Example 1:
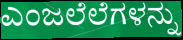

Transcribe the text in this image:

ಎಂಜಲೆಲೆಗಳನ್ನು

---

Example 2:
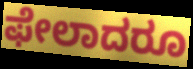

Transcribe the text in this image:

ಫೇಲಾದರೂ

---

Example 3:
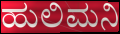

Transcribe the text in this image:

ಹುಲಿಮನಿ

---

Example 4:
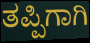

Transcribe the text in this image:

ತಪ್ಪಿಗಾಗಿ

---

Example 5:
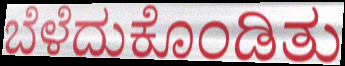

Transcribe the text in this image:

ಬೆಳೆದುಕೊಂಡಿತು